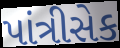
પાંત્રીસેક